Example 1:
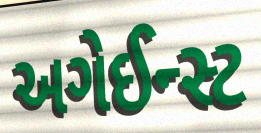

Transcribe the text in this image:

અગેઈન્સ્ટ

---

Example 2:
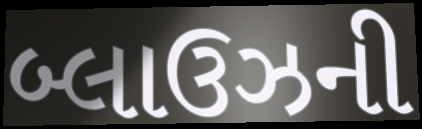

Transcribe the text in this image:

બ્લાઉઝની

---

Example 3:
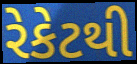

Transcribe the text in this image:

રેકેટથી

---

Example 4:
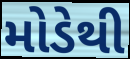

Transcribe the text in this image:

મોડેથી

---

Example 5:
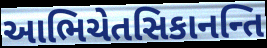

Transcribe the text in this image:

આભિચેતસિકાનન્તિ